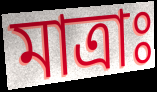
মাত্রাঃ